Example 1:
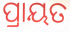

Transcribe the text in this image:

ପ୍ରାୟତ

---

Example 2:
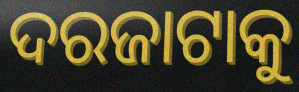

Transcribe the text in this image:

ଦରଜାଟାକୁ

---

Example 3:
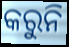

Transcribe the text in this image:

କରୁନି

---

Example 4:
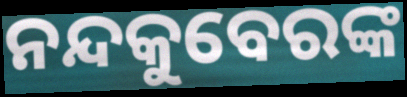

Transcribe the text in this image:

ନନ୍ଦକୁବେରଙ୍କ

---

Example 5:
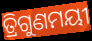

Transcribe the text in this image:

ତ୍ରିଗୁଣମୟୀ